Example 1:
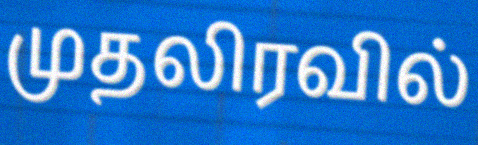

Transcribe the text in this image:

முதலிரவில்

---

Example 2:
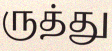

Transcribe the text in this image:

ருத்து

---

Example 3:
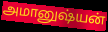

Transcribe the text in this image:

அமானுஷ்யன்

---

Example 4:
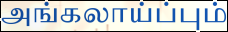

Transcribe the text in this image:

அங்கலாய்ப்பும்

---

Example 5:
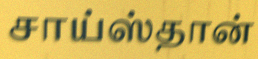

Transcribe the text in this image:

சாய்ஸ்தான்